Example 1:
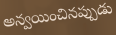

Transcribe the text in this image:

అన్వయించినప్పుడు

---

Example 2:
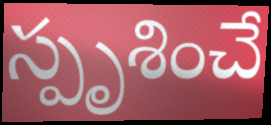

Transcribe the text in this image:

స్పృశించే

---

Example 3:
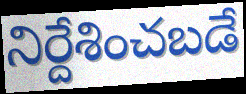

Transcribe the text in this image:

నిర్దేశించబడే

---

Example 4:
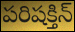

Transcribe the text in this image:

పరిషక్తిన్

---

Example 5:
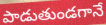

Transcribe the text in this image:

పాడుతుండగానే